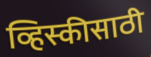
व्हिस्कीसाठी